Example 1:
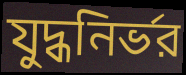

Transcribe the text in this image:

যুদ্ধনির্ভর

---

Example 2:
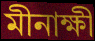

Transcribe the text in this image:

মীনাক্ষী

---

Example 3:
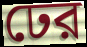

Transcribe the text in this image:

ঢের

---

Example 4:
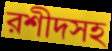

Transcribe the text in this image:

রশীদসহ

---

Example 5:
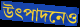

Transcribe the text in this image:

উৎপাদনেও